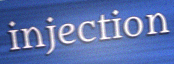
injection